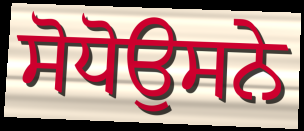
ਸੋਧੋਉਸਨੇ